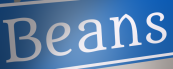
Beans